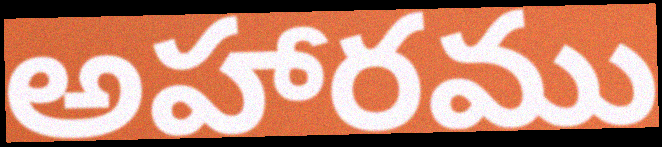
అహారము